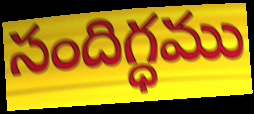
సందిగ్ధము